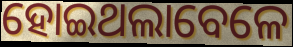
ହୋଇଥଲାବେଳେ